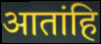
आतांहि